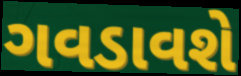
ગવડાવશે